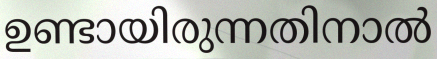
ഉണ്ടായിരുന്നതിനാൽ